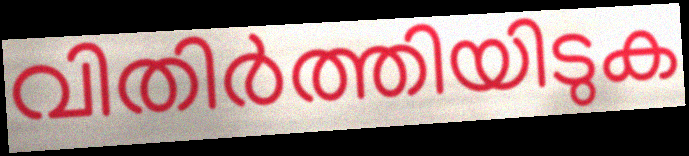
വിതിർത്തിയിടുക